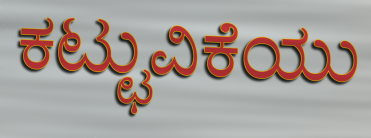
ಕಟ್ಟುವಿಕೆಯು